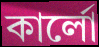
কার্লো